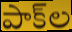
పాక్‌ల